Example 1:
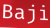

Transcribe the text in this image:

Baji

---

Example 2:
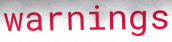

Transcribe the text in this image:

warnings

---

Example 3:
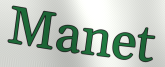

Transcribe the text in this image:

Manet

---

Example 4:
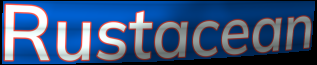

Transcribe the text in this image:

Rustacean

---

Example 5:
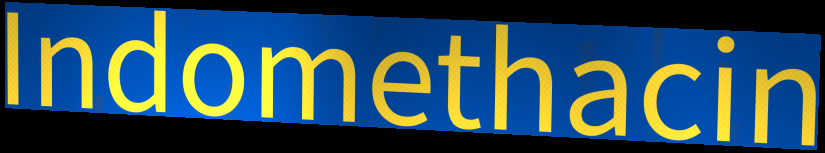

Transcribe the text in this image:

Indomethacin